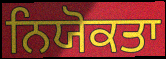
ਨਿਯੋਕਤਾ